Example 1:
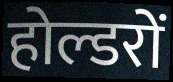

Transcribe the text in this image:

होल्‍डरों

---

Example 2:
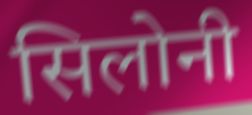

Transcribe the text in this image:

सिलोनी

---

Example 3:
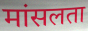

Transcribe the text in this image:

मांसलता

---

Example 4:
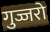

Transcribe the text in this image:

गुज्जरो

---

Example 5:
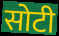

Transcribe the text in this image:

सोटी